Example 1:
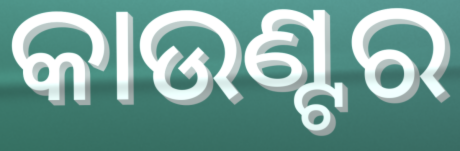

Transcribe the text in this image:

କାଉଣ୍ଟର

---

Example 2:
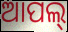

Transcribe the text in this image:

ଆପଲ୍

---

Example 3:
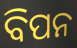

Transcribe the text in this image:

ବିପନ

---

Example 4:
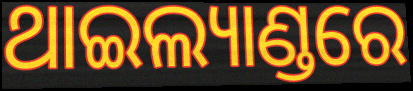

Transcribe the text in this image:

ଥାଇଲ୍ୟାଣ୍ଡରେ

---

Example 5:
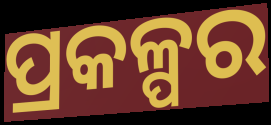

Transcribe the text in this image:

ପ୍ରକଳ୍ପର